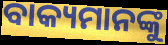
ବାକ୍ୟମାନଙ୍କୁ